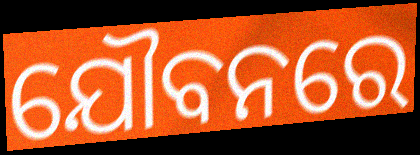
ଯୌବନରେ